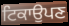
ਟਿਕਾਉਪਣ